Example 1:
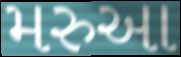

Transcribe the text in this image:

મરુઆ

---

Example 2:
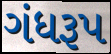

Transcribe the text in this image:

ગંધરૂપ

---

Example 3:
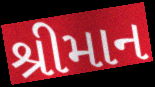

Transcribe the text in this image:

શ્રીમાન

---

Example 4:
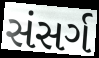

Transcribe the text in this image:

સંસર્ગ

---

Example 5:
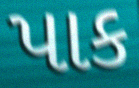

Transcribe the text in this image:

પાક